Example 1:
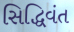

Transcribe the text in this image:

સિદ્ધિવંત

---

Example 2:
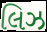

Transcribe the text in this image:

લિઝ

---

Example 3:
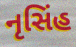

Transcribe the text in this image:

નૃસિંહ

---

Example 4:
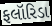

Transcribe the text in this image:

ફલૉરિડા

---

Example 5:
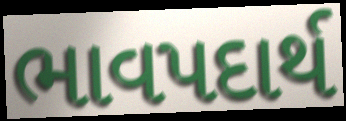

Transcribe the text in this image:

ભાવપદાર્થ